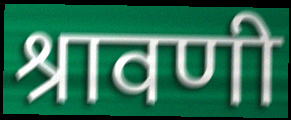
श्रावणी